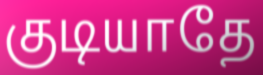
குடியாதே